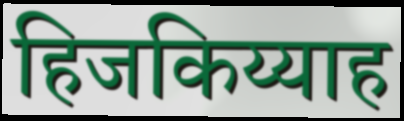
हिजकिय्याह